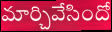
మార్చివేసిందో